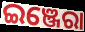
ଇଞ୍ଜେରା